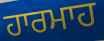
ਹਾਰਮਾਹ